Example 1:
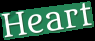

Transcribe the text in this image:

Heart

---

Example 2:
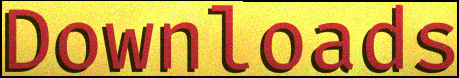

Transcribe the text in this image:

Downloads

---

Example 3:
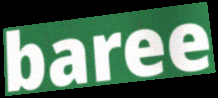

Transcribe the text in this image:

baree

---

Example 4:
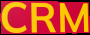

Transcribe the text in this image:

CRM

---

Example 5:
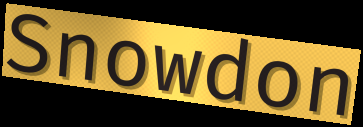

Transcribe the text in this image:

Snowdon